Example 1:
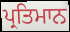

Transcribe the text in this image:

ਪ੍ਰਤਿਮਾਨ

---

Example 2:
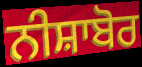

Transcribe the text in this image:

ਨੀਸ਼ਾਬੋਰ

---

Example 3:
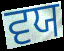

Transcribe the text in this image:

ਵਯ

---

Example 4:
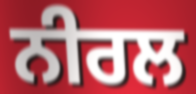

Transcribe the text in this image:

ਨੀਰਲ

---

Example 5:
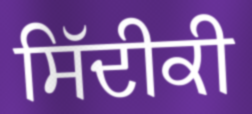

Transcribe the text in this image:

ਸਿੱਦੀਕੀ